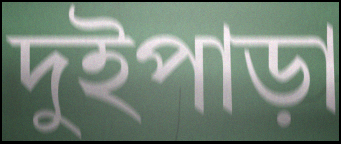
দুইপাড়া